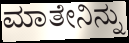
ಮಾತೇನಿನ್ನು